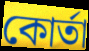
কোর্তা